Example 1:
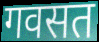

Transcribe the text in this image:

गवसत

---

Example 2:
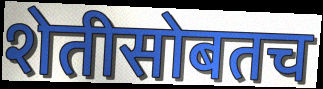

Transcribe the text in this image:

शेतीसोबतच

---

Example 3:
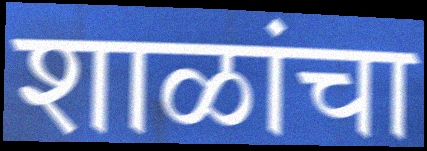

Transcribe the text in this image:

शाळांचा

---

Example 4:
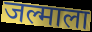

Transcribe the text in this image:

जल्माला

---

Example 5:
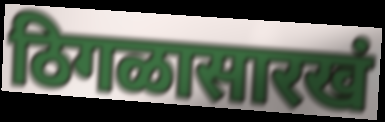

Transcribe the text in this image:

ठिगळासारखं